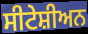
ਸੀਟੇਸ਼ੀਅਨ